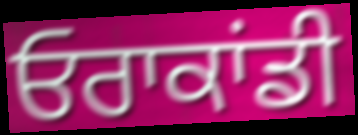
ਓਰਾਕਾਂਡੀ